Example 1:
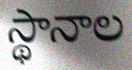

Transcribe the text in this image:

స్థానాల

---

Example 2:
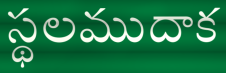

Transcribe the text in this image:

స్థలముదాక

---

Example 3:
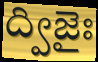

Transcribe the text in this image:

ద్విజైః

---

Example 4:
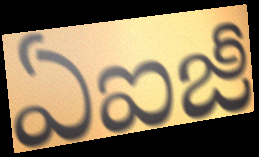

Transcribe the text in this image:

ఏఐజీ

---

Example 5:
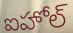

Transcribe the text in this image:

ఐహోల్